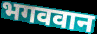
भगववान